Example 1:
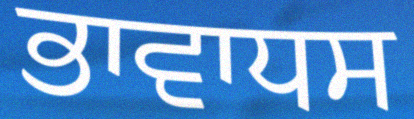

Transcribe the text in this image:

ਭਾਵਾਧਸ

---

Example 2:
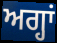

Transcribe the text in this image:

ਅਗ੍ਹਾਂ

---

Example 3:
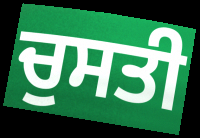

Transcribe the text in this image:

ਚੁਸਤੀ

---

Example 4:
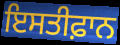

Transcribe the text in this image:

ਇਸਤੀਫ਼ਾਨ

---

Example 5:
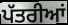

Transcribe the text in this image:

ਪੱਤਰੀਆਂ